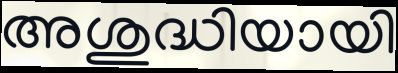
അശുദ്ധിയായി